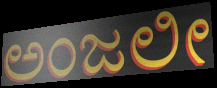
ಅಂಜಲೀ